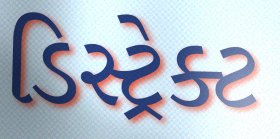
ડિસ્ટ્રેક્ટ